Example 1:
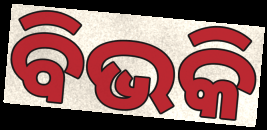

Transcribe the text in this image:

ବିଭକି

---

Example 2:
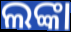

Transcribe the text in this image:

ଲଙ୍କା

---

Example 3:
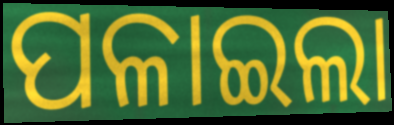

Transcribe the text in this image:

ପଳାଇଲା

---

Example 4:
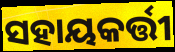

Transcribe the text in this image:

ସହାୟକର୍ତ୍ତୀ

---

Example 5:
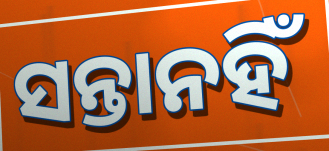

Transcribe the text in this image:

ସନ୍ତାନହିଁ